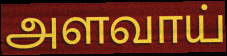
அளவாய்